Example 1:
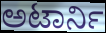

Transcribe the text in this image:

ಅಟಾರ್ನಿ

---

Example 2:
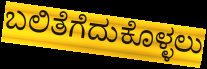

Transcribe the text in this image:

ಬಲಿತೆಗೆದುಕೊಳ್ಳಲು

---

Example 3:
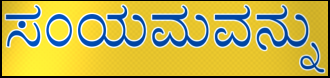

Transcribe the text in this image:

ಸಂಯಮವನ್ನು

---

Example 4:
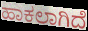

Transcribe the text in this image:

ಹಾಕಲಾಗಿದೆ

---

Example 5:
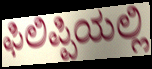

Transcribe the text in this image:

ಫಿಲಿಪ್ಪಿಯಲ್ಲಿ